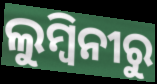
ଲୁମ୍ବିନୀରୁ